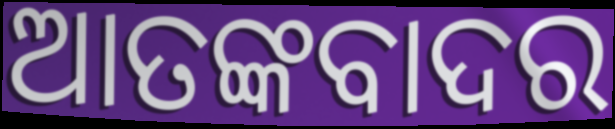
ଆତଙ୍କବାଦର